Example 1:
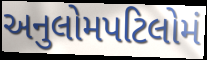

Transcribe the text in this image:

અનુલોમપટિલોમં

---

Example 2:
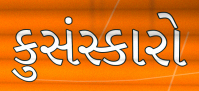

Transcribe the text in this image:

કુસંસ્કારો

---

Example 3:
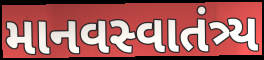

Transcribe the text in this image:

માનવસ્વાતંત્ર્ય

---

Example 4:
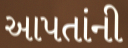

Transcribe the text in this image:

આપતાંની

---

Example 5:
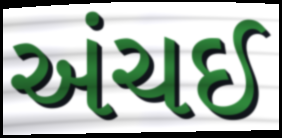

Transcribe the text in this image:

અંચઈ